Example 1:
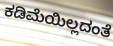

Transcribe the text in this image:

ಕಡಿಮೆಯಿಲ್ಲದಂತೆ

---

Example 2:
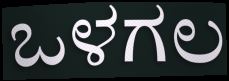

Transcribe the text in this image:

ಒಳಗಲ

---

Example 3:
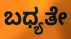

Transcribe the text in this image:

ಬಧ್ಯತೇ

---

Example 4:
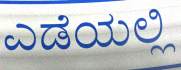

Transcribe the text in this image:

ಎಡೆಯಲ್ಲಿ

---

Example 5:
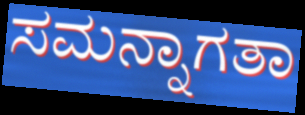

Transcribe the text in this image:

ಸಮನ್ನಾಗತಾ